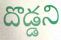
దొడ్డని